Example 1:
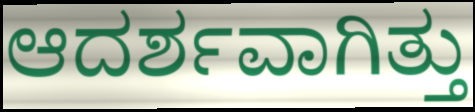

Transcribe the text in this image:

ಆದರ್ಶವಾಗಿತ್ತು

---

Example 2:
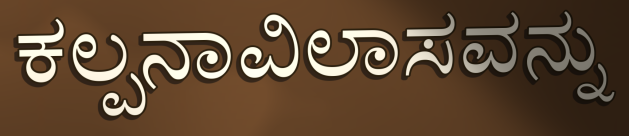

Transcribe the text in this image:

ಕಲ್ಪನಾವಿಲಾಸವನ್ನು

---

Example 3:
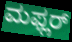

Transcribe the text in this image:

ಮಫ್ಲರ್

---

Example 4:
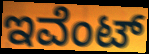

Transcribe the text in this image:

ಇವೆಂಟ್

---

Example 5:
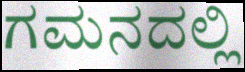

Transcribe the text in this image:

ಗಮನದಲ್ಲಿ